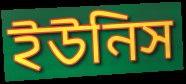
ইউনিস